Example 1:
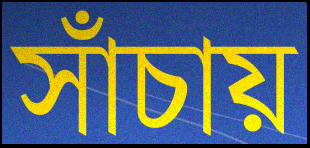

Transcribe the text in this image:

সাঁচায়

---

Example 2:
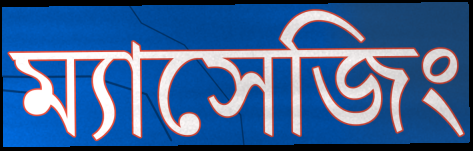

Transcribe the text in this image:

ম্যাসেজিং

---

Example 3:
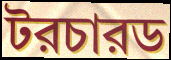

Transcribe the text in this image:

টরচারড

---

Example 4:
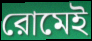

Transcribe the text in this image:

রোমেই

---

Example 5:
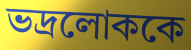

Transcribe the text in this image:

ভদ্রলোককে